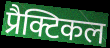
प्रैक्टिकल